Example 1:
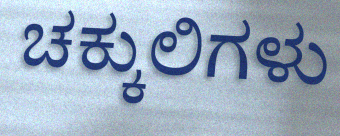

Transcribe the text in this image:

ಚಕ್ಕುಲಿಗಳು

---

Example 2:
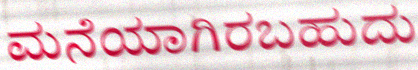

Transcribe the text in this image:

ಮನೆಯಾಗಿರಬಹುದು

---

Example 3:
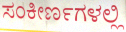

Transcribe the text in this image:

ಸಂಕೀರ್ಣಗಳಲ್ಲಿ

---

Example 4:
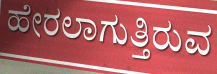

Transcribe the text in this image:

ಹೇರಲಾಗುತ್ತಿರುವ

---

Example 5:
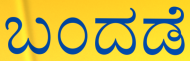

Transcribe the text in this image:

ಬಂದಡೆ